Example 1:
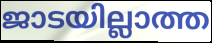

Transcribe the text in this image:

ജാടയില്ലാത്ത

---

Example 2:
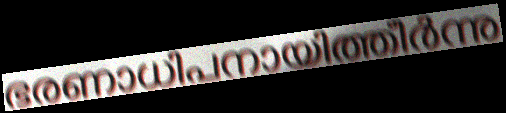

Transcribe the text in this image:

ഭരണാധിപനായിത്തീർന്നു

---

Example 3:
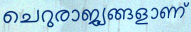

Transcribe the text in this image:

ചെറുരാജ്യങ്ങളാണ്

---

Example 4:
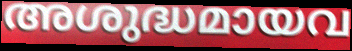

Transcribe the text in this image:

അശുദ്ധമായവ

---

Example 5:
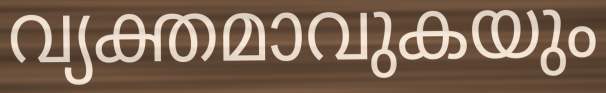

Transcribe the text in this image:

വ്യക്തമാവുകയും